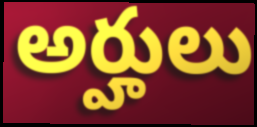
అర్హులు